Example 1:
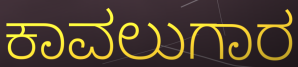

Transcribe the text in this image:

ಕಾವಲುಗಾರ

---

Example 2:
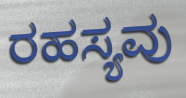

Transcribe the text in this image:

ರಹಸ್ಯವು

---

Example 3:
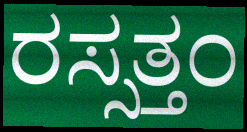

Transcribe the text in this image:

ರಸ್ಸತ್ತಂ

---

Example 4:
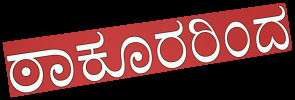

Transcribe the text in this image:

ಠಾಕೂರರಿಂದ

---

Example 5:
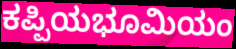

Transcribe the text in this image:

ಕಪ್ಪಿಯಭೂಮಿಯಂ